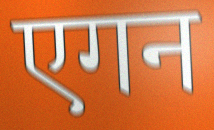
एगन